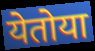
येतोया